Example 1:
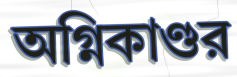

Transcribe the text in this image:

অগ্নিকাণ্ডর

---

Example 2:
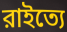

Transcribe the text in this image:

রাইত্যে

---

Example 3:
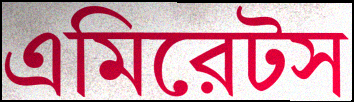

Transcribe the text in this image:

এমিরেটস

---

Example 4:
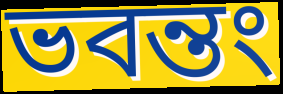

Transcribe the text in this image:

ভবন্তং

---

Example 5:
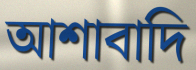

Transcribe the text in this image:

আশাবাদি